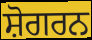
ਸ਼ੋਗਰਨ